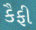
કૈફી